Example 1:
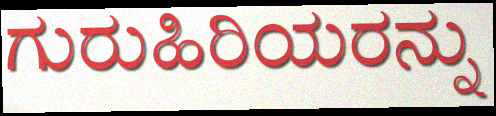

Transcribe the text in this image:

ಗುರುಹಿರಿಯರನ್ನು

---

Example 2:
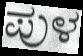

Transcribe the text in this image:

ಪುಳ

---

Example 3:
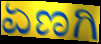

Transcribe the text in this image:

ಏಣಗಿ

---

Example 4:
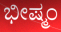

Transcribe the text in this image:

ಭೀಷ್ಮಂ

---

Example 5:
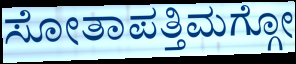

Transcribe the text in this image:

ಸೋತಾಪತ್ತಿಮಗ್ಗೋ